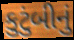
કુટુંબીનું